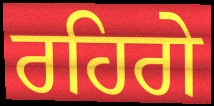
ਰਹਿਗੇ